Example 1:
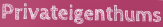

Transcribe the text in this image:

Privateigenthums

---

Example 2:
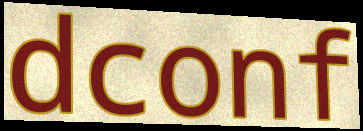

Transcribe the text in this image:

dconf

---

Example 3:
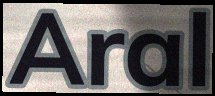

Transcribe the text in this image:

Aral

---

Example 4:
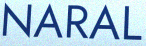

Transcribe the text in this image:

NARAL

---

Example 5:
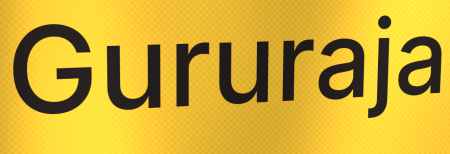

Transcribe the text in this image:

Gururaja